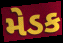
મેડક